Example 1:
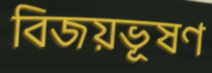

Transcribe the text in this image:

বিজয়ভূষণ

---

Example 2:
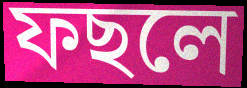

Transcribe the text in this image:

ফছলে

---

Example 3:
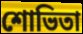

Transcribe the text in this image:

শোভিতা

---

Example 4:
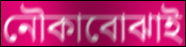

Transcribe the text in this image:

নৌকাবোঝাই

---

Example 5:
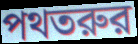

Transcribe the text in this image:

পথতরুর